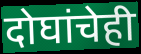
दोघांचेही